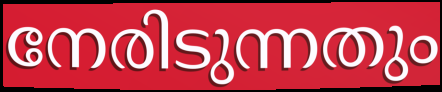
നേരിടുന്നതും